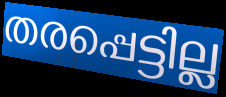
തരപ്പെട്ടില്ല